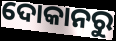
ଦୋକାନରୁ